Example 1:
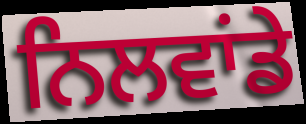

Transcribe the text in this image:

ਨਿਲਵਾਂਡੇ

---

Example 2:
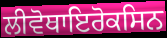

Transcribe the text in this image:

ਲੀਵੋਥਾਇਰੋਕਸਿਨ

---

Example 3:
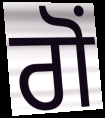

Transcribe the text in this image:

ਗੋਂ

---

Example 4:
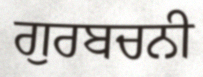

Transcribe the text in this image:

ਗੁਰਬਚਨੀ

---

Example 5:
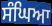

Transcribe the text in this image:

ਸੰਘਿਆ